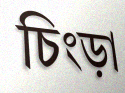
চিংড়া